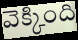
వెక్కింది